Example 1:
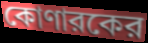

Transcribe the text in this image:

কোণারকের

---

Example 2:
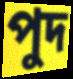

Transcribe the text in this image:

পুদ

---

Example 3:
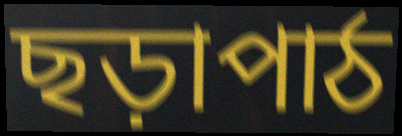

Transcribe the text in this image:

ছড়াপাঠ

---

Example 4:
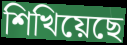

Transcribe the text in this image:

শিখিয়েছে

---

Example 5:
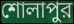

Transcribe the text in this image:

শোলাপুর